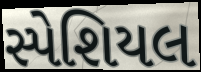
સ્પેશિયલ